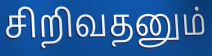
சிறிவதனும்